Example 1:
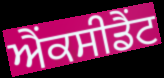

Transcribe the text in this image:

ਐਂਕਸੀਡੈਂਟ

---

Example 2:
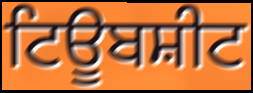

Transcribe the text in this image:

ਟਿਊਬਸ਼ੀਟ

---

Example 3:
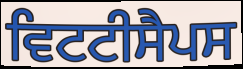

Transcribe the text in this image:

ਵਿਟਟੀਸੈਪਸ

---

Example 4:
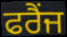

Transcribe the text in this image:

ਫਰੈਂਜ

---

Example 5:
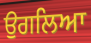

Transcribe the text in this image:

ਉਗਲਿਆ